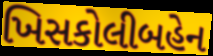
ખિસકોલીબહેન